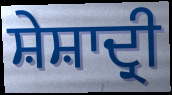
ਸ਼ੇਸ਼ਾਦ੍ਰੀ